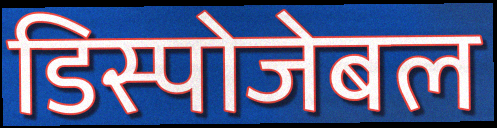
डिस्पोजेबल